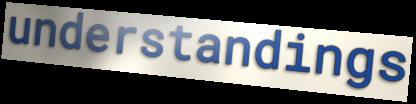
understandings